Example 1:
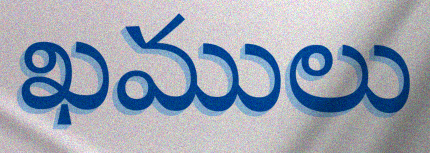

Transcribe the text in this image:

ఖములు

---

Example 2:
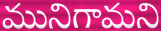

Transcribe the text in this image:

మునిగామని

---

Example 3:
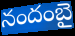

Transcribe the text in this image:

నందంబై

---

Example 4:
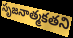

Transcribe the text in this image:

సృజనాత్మకతని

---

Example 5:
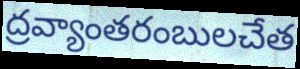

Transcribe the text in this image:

ద్రవ్యాంతరంబులచేత